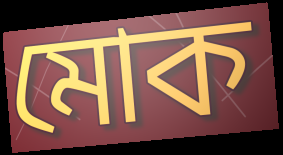
মোক